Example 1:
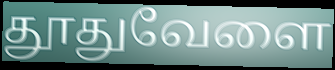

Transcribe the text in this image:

தூதுவேளை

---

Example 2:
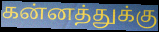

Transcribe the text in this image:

கன்னத்துக்கு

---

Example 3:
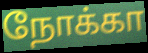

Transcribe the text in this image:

நோக்கா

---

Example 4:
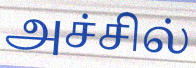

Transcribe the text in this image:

அச்சில்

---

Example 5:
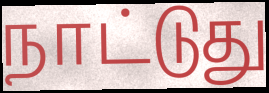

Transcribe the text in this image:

நாட்டுது